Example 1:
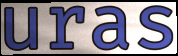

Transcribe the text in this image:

uras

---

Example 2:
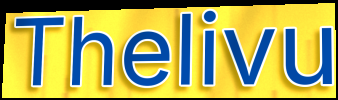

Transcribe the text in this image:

Thelivu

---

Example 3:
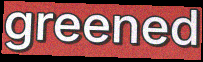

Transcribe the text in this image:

greened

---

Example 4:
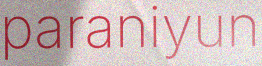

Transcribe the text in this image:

paraniyun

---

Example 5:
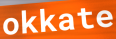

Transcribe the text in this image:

okkate